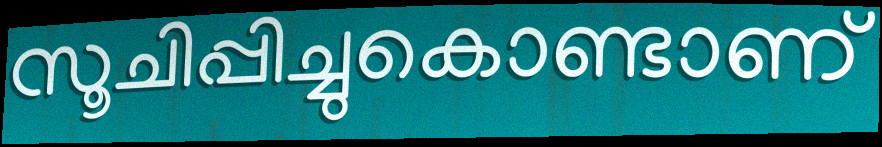
സൂചിപ്പിച്ചുകൊണ്ടാണ്